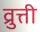
व्रुत्ती